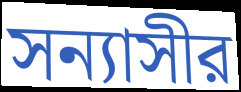
সন্যাসীর